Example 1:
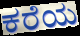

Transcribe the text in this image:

ಕರೆಯ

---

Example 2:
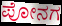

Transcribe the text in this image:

ಪೋನಗ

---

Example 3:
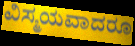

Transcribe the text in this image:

ವಿಸ್ಮಯವಾದರೂ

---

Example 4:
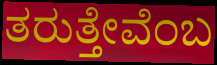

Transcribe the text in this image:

ತರುತ್ತೇವೆಂಬ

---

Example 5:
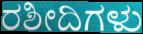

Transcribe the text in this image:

ರಶೀದಿಗಳು